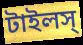
টাইলস্